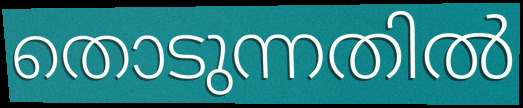
തൊടുന്നതിൽ